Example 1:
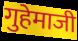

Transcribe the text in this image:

गुहेमाजी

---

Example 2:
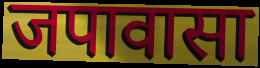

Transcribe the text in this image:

जपावासा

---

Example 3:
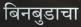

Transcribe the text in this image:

बिनबुडाचा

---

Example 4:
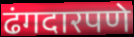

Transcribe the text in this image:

ढंगदारपणे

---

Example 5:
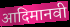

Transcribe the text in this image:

आदिमानवी